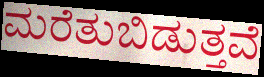
ಮರೆತುಬಿಡುತ್ತವೆ